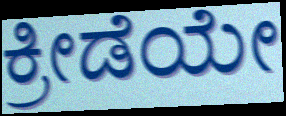
ಕ್ರೀಡೆಯೇ